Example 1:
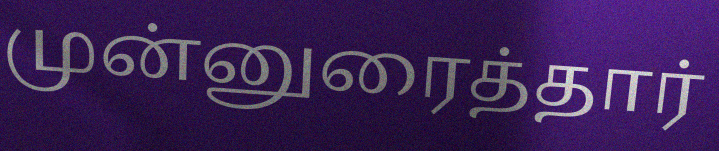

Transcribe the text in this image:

முன்னுரைத்தார்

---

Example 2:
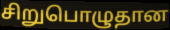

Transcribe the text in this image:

சிறுபொழுதான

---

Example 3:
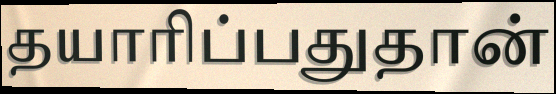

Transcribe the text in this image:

தயாரிப்பதுதான்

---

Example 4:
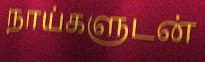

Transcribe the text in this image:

நாய்களுடன்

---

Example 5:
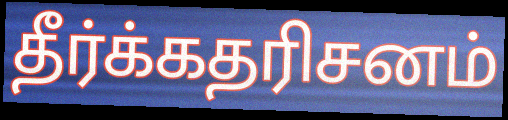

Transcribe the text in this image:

தீர்க்கதரிசனம்